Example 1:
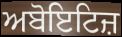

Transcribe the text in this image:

ਅਬੋਇਟਿਜ਼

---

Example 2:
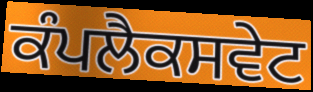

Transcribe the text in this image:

ਕੰਪਲੈਕਸਵੇਟ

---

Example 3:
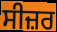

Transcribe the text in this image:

ਸੀਜ਼ਰ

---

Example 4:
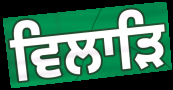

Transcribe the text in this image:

ਵਿਲਾੜਿ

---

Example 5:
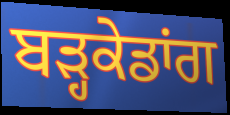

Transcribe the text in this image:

ਬੜ੍ਹਕੇਡਾਂਗ